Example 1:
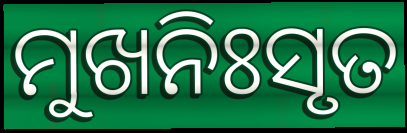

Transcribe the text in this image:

ମୁଖନିଃସୃତ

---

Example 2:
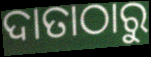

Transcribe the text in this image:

ଦାତାଠାରୁ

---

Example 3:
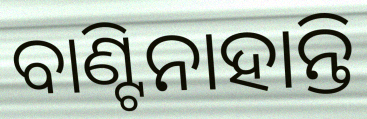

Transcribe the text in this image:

ବାଣ୍ଟିନାହାନ୍ତି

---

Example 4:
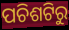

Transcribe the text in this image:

ପଚିଶଟିରୁ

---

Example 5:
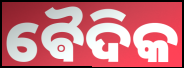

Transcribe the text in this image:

ଵୈଦିକ